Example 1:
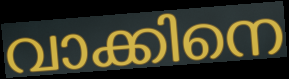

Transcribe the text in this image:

വാക്കിനെ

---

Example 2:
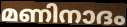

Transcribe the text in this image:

മണിനാദം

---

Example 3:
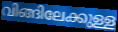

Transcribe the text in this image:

വിങ്ങിലേക്കുള്ള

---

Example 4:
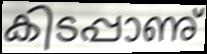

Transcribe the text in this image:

കിടപ്പാണു്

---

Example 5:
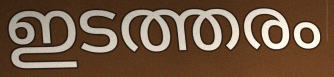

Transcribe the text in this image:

ഇടത്തരം